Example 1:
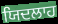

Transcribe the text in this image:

ਯਿਦਲਾਹ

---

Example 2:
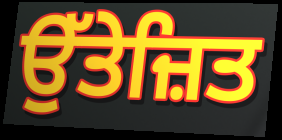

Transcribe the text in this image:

ਉੱਤੇਜ਼ਿਤ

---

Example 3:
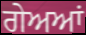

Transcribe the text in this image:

ਗੇਅਆਂ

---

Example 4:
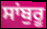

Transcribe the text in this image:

ਸਾਂਬੁਰੂ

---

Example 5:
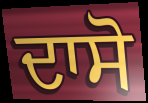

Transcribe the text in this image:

ਦਾਸੋ